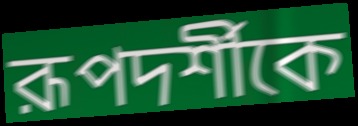
রূপদর্শীকে